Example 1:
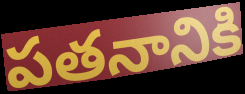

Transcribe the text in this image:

పతనానికి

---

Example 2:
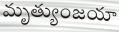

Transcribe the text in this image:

మృత్యుంజయా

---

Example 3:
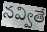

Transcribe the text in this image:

నవ్వితే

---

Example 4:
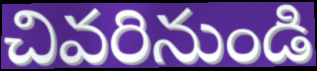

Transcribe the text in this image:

చివరినుండి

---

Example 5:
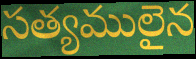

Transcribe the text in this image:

సత్యములైన